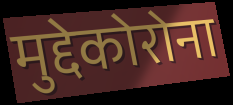
मुद्देकोरोना